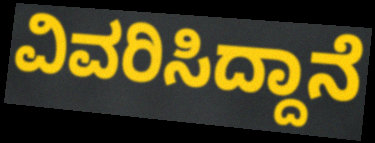
ವಿವರಿಸಿದ್ದಾನೆ